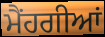
ਮੈਂਹਗੀਆਂ